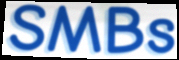
SMBs